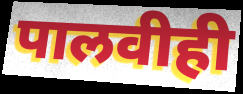
पालवीही